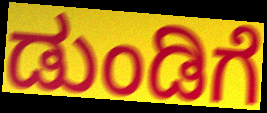
ಡುಂಡಿಗೆ